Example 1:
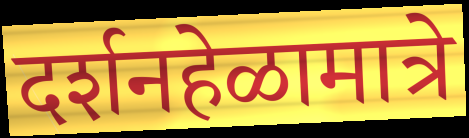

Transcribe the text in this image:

दर्शनहेळामात्रे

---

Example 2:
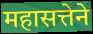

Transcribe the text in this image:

महासत्तेने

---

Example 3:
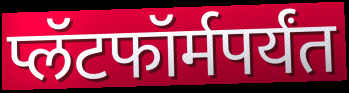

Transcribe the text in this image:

प्लॅटफॉर्मपर्यंत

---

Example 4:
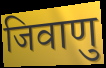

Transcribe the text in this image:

जिवाणु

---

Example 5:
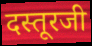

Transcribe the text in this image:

दस्तूरजी